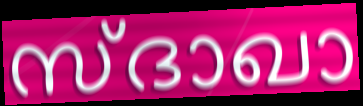
സ്ദാഖാ